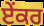
ਏੰਕਰ